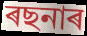
ৰছনাৰ